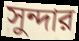
সুন্দার